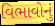
વિભાવોનું